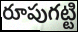
రూపుగట్టి